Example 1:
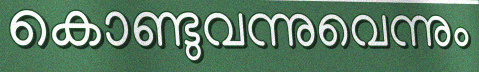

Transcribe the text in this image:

കൊണ്ടുവന്നുവെന്നും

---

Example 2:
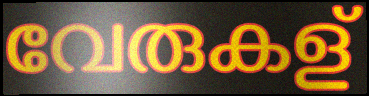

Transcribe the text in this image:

വേരുകള്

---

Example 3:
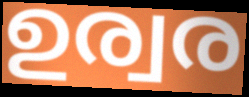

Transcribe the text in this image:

ഉര്വര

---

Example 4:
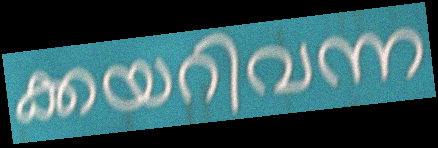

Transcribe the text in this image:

ക്കയറിവന്ന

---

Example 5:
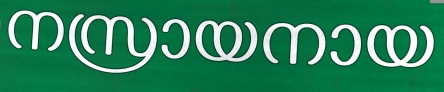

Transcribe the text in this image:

നസ്രായനായ